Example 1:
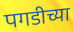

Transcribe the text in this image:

पगडीच्या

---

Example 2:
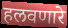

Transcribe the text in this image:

हलवणारे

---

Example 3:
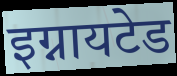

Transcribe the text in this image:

इग्नायटेड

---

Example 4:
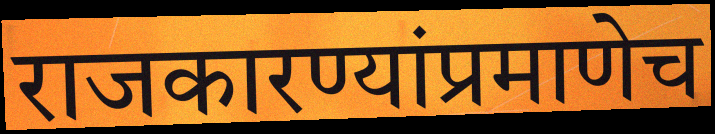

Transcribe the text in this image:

राजकारण्यांप्रमाणेच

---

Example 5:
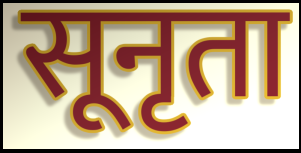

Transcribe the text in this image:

सूनृता